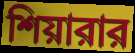
শিয়ারার